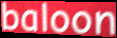
baloon